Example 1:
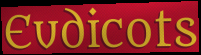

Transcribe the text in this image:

Eudicots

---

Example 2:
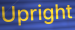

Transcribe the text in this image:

Upright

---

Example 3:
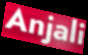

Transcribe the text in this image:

Anjali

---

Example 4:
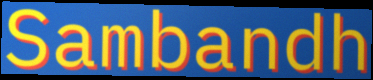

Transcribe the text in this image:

Sambandh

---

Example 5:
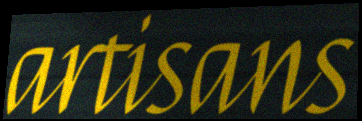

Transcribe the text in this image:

artisans